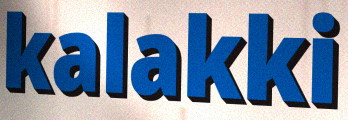
kalakki